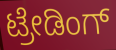
ಟ್ರೇಡಿಂಗ್